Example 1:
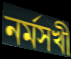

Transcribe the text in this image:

নর্মসখী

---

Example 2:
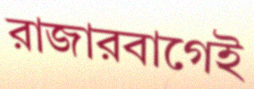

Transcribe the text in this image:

রাজারবাগেই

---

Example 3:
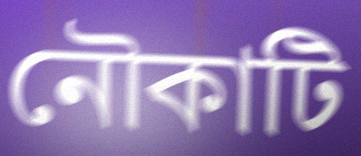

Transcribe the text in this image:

নৌকাটি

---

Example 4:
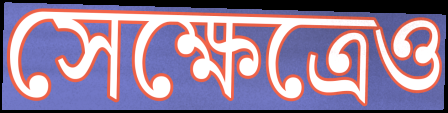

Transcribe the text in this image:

সেক্ষেত্রেও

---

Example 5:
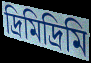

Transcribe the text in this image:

দ্রিমিদ্রিমি